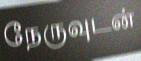
நேருவுடன்